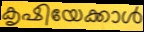
കൃഷിയേക്കാൾ